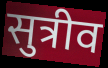
सुत्रीव